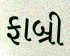
ફાબ્રી